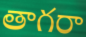
తాగరా